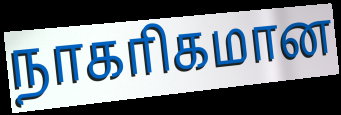
நாகரிகமான